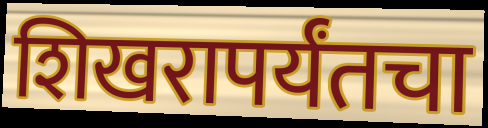
शिखरापर्यंतचा